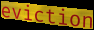
eviction